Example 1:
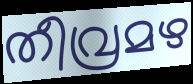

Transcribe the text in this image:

തീവ്രമഴ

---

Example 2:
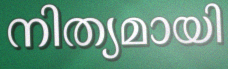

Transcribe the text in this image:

നിത്യമായി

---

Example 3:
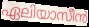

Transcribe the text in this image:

ഏലിയാസീൻ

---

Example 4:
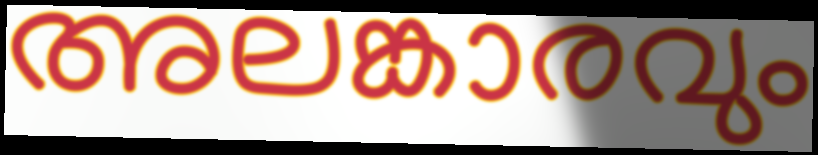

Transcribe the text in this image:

അലങ്കാരവും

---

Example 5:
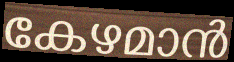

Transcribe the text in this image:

കേഴമാൻ